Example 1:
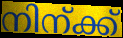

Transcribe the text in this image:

നിന്ക്ക്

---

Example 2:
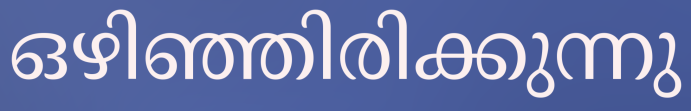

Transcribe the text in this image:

ഒഴിഞ്ഞിരിക്കുന്നു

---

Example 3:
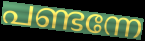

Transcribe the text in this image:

പണ്ടന്നേ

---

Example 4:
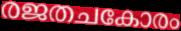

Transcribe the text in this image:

രജതചകോരം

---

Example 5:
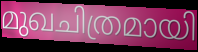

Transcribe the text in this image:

മുഖചിത്രമായി